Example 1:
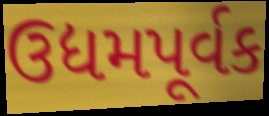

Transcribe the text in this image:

ઉદ્યમપૂર્વક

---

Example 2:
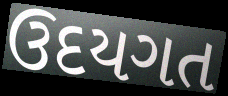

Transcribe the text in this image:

ઉદયગત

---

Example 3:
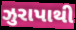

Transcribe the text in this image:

ઝુરાપાથી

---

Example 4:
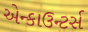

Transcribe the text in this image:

એન્કાઉન્ટર્સ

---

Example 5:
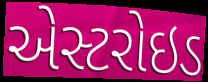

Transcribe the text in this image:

એસ્ટરોઇડ